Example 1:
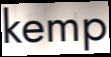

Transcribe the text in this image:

kemp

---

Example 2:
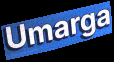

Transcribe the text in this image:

Umarga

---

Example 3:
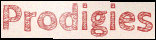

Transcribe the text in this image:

Prodigies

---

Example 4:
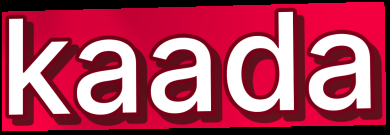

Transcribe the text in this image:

kaada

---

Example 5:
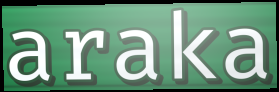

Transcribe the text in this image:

araka